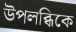
উপলব্ধিকে